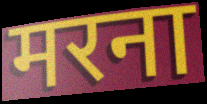
मरना